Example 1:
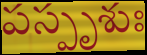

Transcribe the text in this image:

పస్పృశుః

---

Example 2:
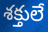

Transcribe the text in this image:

శక్తులే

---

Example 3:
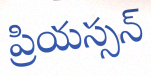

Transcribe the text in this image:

ప్రియస్సన్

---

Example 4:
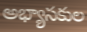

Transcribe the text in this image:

అభ్యాసకుల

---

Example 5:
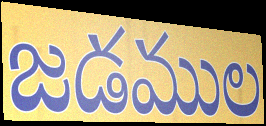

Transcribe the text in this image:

జడముల